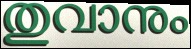
തുവാനും